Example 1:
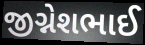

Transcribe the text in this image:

જીગ્નેશભાઈ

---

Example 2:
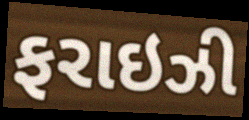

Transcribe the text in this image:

ફરાઇઝી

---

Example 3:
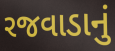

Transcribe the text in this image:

રજવાડાનું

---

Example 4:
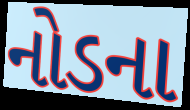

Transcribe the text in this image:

નોડના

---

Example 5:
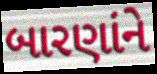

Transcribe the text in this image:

બારણાંને